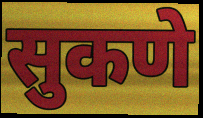
सुकणे